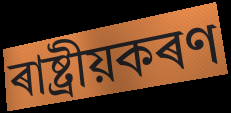
ৰাষ্ট্ৰীয়কৰণ